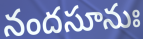
నందసూనుః